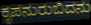
ಕೃಪನುರುಬಿದನು